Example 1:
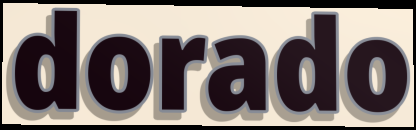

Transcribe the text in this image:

dorado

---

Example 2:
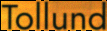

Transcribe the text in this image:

Tollund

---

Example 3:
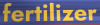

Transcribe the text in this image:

fertilizer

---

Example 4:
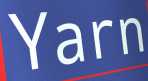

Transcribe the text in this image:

Yarn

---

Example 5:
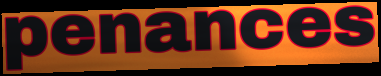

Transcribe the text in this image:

penances